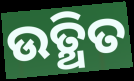
ଉତ୍ଥିତ